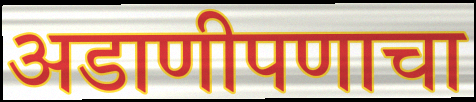
अडाणीपणाचा